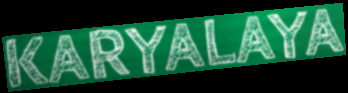
KARYALAYA